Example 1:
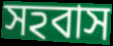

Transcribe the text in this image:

সহবাস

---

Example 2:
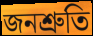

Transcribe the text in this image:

জনশ্ৰুতি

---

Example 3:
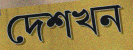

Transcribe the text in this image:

দেশখন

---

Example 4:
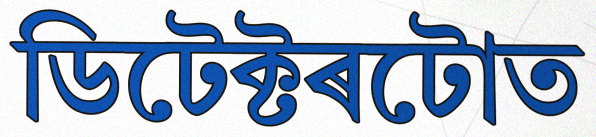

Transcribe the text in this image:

ডিটেক্টৰটোত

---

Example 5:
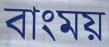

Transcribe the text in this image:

বাংময়